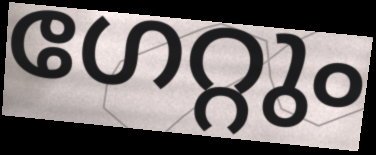
ഗേറ്റും